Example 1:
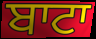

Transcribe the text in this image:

ਬਾਟਾ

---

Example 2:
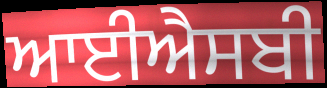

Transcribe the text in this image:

ਆਈਐਸਬੀ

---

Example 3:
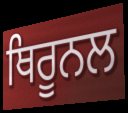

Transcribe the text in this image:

ਥਿਰੂਨਲ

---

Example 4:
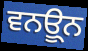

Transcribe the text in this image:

ਵਨਊ੍ਨ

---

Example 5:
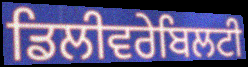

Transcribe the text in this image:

ਡਿਲੀਵਰੇਬਿਲਟੀ